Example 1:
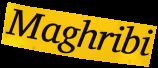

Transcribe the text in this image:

Maghribi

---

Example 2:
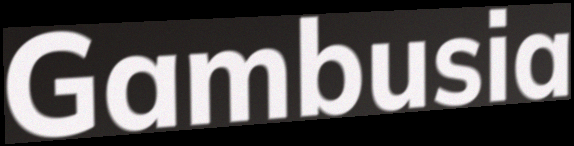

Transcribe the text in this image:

Gambusia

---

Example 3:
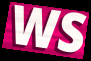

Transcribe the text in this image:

WS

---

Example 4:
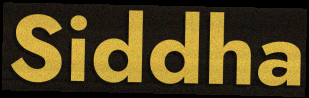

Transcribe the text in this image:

Siddha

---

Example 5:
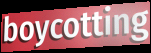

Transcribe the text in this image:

boycotting